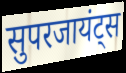
सुपरजायंट्स